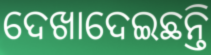
ଦେଖାଦେଇଛନ୍ତି